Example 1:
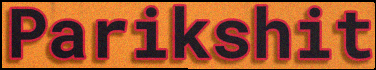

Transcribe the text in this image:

Parikshit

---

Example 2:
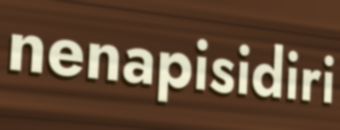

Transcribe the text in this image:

nenapisidiri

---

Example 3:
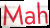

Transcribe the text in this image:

Mah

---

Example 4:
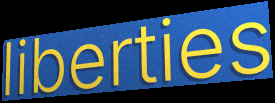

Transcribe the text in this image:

liberties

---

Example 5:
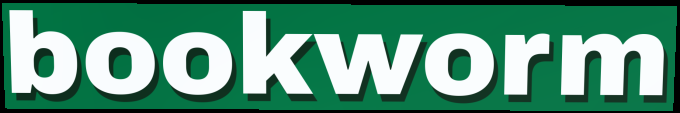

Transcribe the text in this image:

bookworm